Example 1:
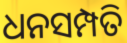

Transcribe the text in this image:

ଧନସମ୍ପତି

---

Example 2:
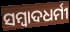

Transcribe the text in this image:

ସମ୍ବାଦଧର୍ମୀ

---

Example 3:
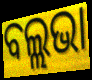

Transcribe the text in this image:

ବଲ୍ଲଭା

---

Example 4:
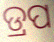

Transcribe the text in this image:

ଡ୍ରପ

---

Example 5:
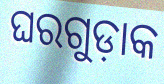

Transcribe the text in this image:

ଘରଗୁଡ଼ାକ